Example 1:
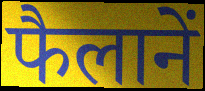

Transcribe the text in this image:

फैलानें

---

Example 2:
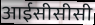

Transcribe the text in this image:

आईसीसीसी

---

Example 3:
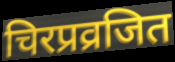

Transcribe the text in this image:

चिरप्रव्रजित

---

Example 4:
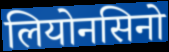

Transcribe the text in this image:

लियोनसिनो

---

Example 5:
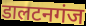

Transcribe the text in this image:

डालटनगंज